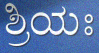
ಶ್ರಿಯಃ